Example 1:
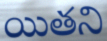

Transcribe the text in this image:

యితని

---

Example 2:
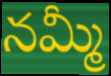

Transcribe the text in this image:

నమ్మీ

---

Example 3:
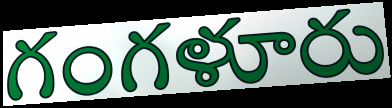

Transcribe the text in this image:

గంగళూరు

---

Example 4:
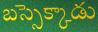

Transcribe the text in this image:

బస్సెక్కాడు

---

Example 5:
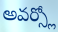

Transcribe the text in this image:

అవర్స్లో